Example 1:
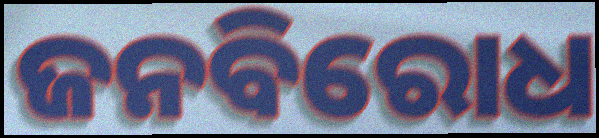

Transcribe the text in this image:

ଜନବିରୋଧ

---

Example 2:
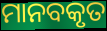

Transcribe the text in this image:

ମାନବକୃତ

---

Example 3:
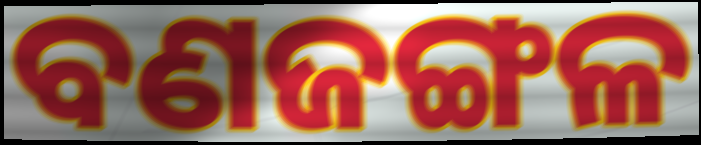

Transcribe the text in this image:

ବଣଜଙ୍ଗଳ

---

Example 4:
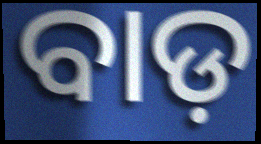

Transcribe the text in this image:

ବାଡ଼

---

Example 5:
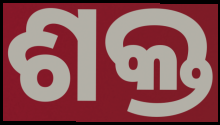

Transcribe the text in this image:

ଶକ୍ତ